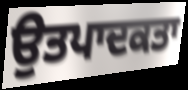
ਉਤਪਾਦਕਤਾ